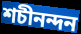
শচীনন্দন